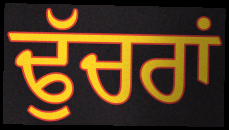
ਢੁੱਚਰਾਂ